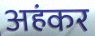
अहंकर